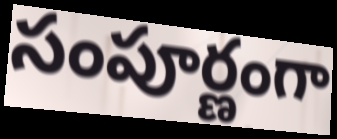
సంపూర్ణంగా